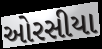
ઓરસીયા